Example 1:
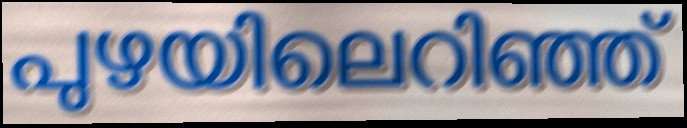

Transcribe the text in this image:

പുഴയിലെറിഞ്ഞ്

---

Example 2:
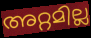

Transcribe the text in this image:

അറ്റമില്ല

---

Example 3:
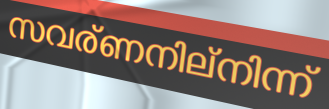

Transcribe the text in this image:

സവര്ണനില്നിന്ന്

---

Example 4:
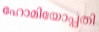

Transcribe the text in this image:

ഹോമിയോപ്പതി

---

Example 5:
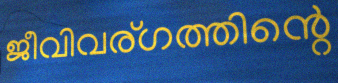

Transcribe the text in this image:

ജീവിവര്ഗത്തിന്റെ